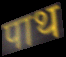
पाथ